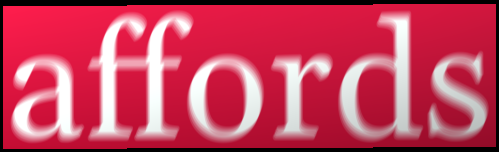
affords